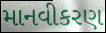
માનવીકરણ